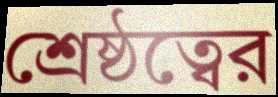
শ্রেষ্ঠত্বের